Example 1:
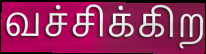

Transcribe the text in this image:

வச்சிக்கிற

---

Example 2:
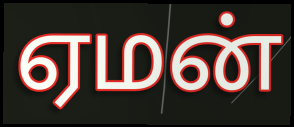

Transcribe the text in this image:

ஏமன்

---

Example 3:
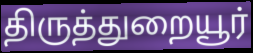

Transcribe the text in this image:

திருத்துறையூர்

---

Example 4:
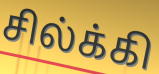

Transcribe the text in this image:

சில்க்கி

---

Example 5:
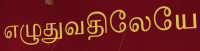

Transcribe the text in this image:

எழுதுவதிலேயே